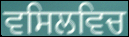
ਵਸਿਲਵਿਚ